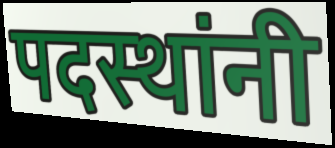
पदस्थांनी